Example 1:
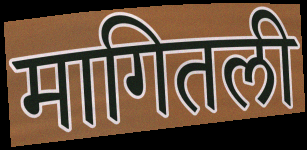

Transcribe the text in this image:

मागितली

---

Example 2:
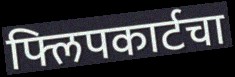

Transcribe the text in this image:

फ्लिपकार्टचा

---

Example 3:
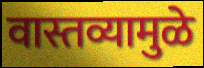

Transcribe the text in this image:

वास्तव्यामुळे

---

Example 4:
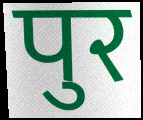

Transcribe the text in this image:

पुर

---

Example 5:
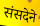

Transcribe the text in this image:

संसदेने